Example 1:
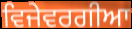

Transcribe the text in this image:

ਵਿਜੇਵਰਗੀਆ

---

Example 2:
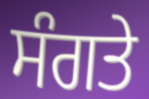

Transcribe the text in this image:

ਸੰਗਤੇ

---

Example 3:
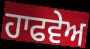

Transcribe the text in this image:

ਹਾਫਵੇਅ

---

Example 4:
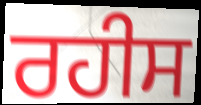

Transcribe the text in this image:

ਰਹੀਸ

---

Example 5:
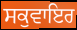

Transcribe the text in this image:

ਸਕੁਵਾਇਰ